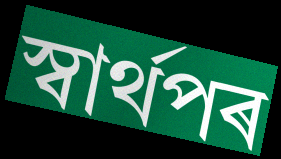
স্বাৰ্থপৰ